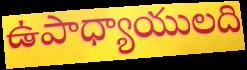
ఉపాధ్యాయులది